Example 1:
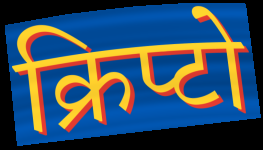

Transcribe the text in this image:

क्रिप्टो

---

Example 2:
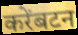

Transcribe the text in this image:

करेंबटन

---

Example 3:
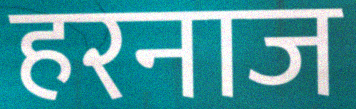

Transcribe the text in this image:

हरनाज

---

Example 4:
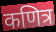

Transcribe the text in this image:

कणित्र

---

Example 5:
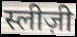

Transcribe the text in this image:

स्लीज़ी